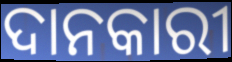
ଦାନକାରୀ